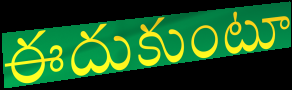
ఈదుకుంటూ